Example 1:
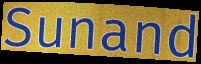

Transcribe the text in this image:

Sunand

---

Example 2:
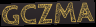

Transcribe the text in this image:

GCZMA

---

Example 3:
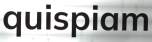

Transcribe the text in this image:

quispiam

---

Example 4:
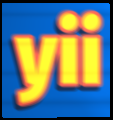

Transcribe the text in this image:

yii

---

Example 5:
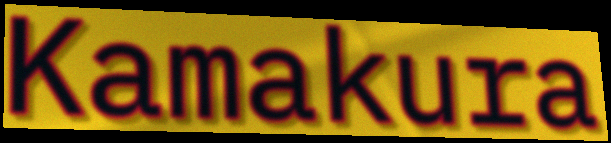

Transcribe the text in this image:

Kamakura